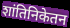
शांतिनिकेतन